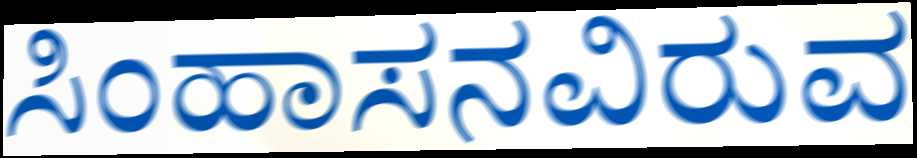
ಸಿಂಹಾಸನವಿರುವ